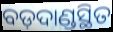
ବଡ଼ଦାଣ୍ଡସ୍ଥିତ